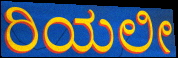
ರಿಯಲೀ